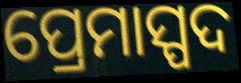
ପ୍ରେମାସ୍ପଦ